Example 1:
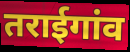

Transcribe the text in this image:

तराईगांव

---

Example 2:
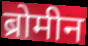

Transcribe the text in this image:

ब्रोमीन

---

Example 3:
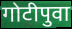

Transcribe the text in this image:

गोटीपुवा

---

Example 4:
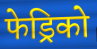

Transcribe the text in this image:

फेड्रिको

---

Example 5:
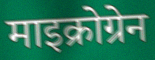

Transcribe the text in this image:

माइक्रोग्रेन